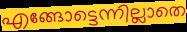
എങ്ങോട്ടെന്നില്ലാതെ